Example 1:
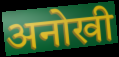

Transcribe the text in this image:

अनोखी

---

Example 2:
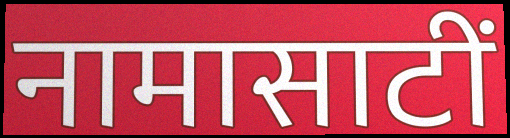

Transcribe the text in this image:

नामासाटीं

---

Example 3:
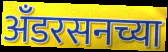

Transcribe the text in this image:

अँडरसनच्या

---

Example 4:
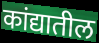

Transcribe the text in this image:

कांद्यातील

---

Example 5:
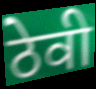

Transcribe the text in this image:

ठेवी